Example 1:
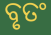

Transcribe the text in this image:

ବୃତଂ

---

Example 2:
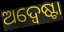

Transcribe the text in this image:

ଅଦ୍ୱେଷ୍ଟା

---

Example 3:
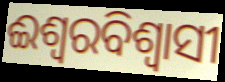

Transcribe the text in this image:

ଈଶ୍ବରବିଶ୍ବାସୀ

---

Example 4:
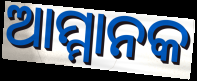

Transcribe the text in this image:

ଆମ୍ମାନକ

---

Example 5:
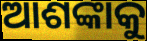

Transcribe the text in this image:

ଆଶଙ୍କାକୁ